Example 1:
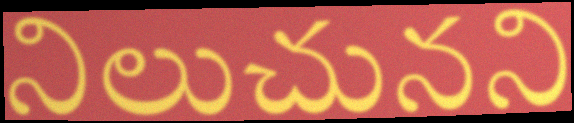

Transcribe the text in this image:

నిలుచునని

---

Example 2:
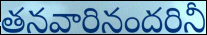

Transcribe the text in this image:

తనవారినందరినీ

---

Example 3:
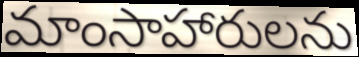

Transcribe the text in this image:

మాంసాహారులను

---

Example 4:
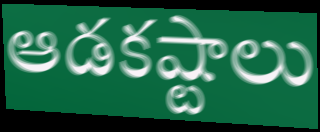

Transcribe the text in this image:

ఆడకష్టాలు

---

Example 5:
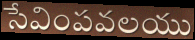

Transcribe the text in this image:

సేవింపవలయు